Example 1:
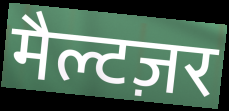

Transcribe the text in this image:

मैल्टज़र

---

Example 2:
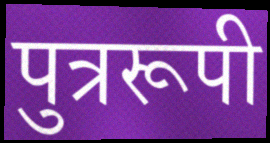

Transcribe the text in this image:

पुत्ररूपी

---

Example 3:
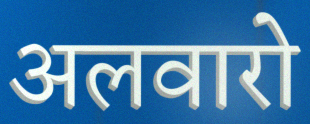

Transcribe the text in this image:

अलवारो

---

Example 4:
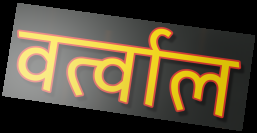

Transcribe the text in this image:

वर्त्वाल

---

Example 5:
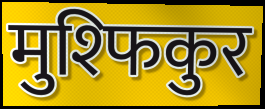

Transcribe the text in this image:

मुश्फिकुर